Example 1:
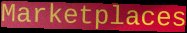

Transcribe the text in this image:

Marketplaces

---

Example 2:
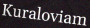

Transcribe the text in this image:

Kuraloviam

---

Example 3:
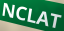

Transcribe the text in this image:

NCLAT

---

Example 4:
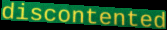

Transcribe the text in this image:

discontented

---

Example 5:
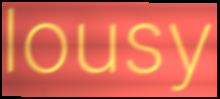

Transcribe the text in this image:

lousy